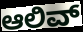
ಆಲಿವ್